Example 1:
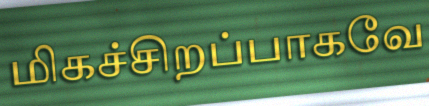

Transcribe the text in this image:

மிகச்சிறப்பாகவே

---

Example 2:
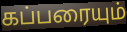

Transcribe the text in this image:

கப்பரையும்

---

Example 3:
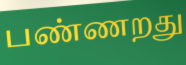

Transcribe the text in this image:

பண்ணறது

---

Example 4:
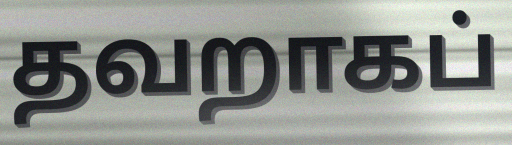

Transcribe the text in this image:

தவறாகப்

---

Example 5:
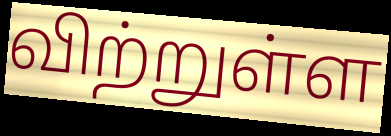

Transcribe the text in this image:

விற்றுள்ள